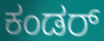
ಕಂಡರ್